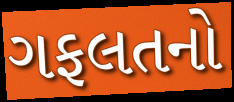
ગફલતનો